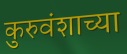
कुरुवंशाच्या